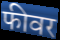
फीवर